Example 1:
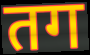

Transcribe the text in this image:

तग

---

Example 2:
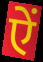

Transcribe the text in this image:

ऐं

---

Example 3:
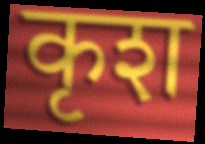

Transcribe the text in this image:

कृश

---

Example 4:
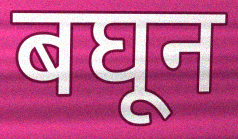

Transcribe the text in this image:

बघून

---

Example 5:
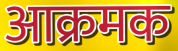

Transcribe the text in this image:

आक्रमक